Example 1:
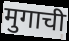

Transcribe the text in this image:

मुगाची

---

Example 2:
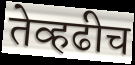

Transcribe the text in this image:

तेव्हढीच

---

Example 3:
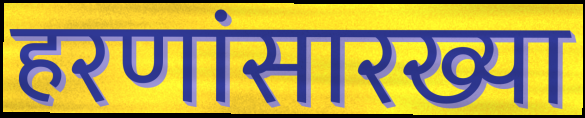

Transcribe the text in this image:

हरणांसारख्या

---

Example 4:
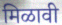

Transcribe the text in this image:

मिळावी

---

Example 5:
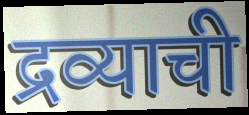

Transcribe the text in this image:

द्रव्याची